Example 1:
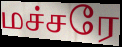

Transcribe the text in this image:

மச்சரே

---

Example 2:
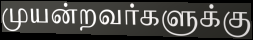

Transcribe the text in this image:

முயன்றவர்களுக்கு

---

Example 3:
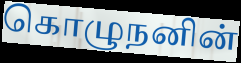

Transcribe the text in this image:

கொழுநனின்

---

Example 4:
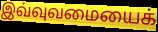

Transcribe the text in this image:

இவ்வுவமையைக்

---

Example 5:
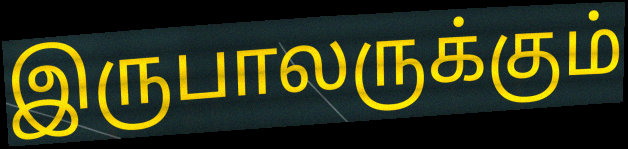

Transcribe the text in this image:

இருபாலருக்கும்